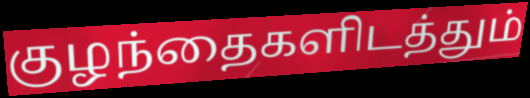
குழந்தைகளிடத்தும்